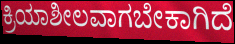
ಕ್ರಿಯಾಶೀಲವಾಗಬೇಕಾಗಿದೆ